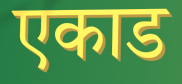
एकाड